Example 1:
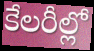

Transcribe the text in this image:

కేలరీల్లో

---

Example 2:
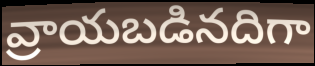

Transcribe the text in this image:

వ్రాయబడినదిగా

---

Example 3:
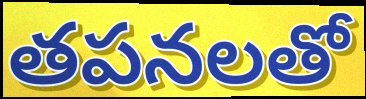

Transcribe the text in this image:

తపనలతో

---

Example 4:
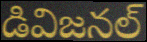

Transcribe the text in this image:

డివిజనల్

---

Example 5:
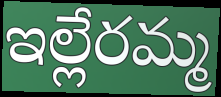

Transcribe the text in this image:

ఇల్లేరమ్మ